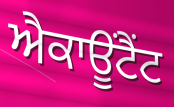
ਐਕਾਊਂਟੈਂਟ